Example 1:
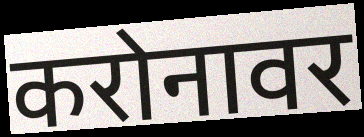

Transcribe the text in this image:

करोनावर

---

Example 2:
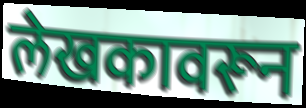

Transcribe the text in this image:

लेखकावरून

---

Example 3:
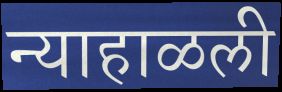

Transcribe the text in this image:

न्याहाळली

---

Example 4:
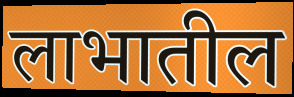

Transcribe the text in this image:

लाभातील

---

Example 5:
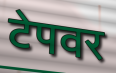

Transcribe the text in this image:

टेपवर